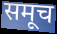
समूच